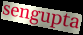
sengupta